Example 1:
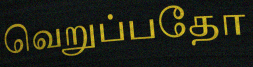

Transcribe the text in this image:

வெறுப்பதோ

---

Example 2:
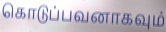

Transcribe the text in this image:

கொடுப்பவனாகவும்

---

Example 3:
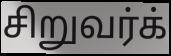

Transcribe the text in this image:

சிறுவர்க்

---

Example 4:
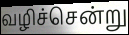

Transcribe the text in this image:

வழிச்சென்று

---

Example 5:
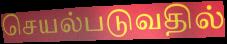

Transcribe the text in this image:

செயல்படுவதில்